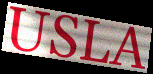
USLA